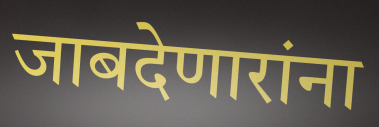
जाबदेणारांना